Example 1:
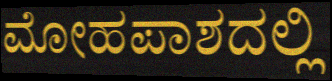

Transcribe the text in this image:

ಮೋಹಪಾಶದಲ್ಲಿ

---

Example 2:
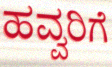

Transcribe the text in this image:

ಹವ್ವರಿಗೆ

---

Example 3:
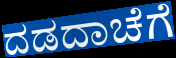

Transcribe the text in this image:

ದಡದಾಚೆಗೆ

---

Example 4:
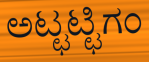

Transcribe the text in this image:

ಅಟ್ಟಟ್ಟಿಗಂ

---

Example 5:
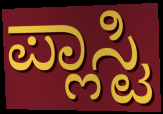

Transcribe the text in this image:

ಪ್ಲಾಸ್ಟಿ